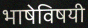
भाषेविषयी